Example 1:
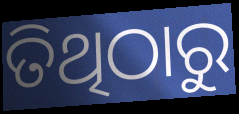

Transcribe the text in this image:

ତିଥିଠାରୁ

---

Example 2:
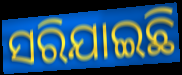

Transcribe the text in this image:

ସରିଯାଇଛି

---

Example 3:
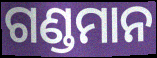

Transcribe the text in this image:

ଗଣ୍ଡମାନ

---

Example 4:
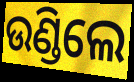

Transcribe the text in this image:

ଉଣ୍ଡିଲେ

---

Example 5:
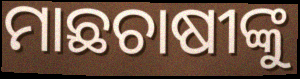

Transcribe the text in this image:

ମାଛଚାଷୀଙ୍କୁ